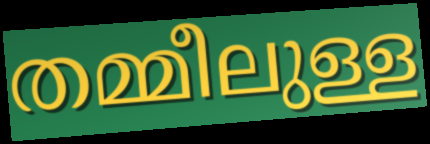
തമ്മീലുള്ള